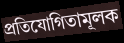
প্ৰতিযোগিতামূলক